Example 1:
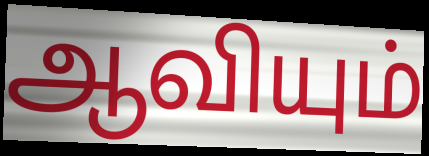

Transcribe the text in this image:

ஆவியும்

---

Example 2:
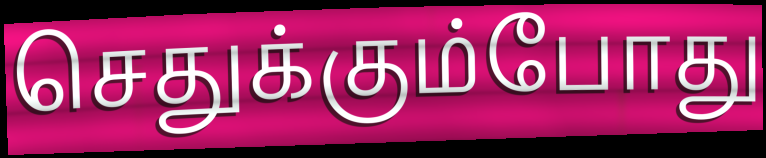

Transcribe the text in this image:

செதுக்கும்போது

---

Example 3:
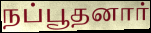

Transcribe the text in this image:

நப்பூதனார்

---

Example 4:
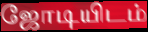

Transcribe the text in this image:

ஜோடியிடம்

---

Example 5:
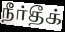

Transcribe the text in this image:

நீர்தீக்